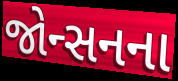
જોન્સનના